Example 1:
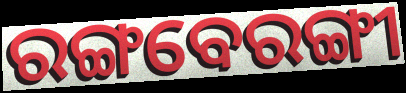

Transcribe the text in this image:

ରଙ୍ଗବେରଙ୍ଗୀ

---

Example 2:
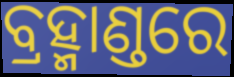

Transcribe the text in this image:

ବ୍ରହ୍ମାଣ୍ଡରେ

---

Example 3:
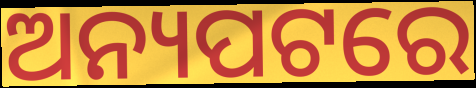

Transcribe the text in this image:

ଅନ୍ୟପଟରେ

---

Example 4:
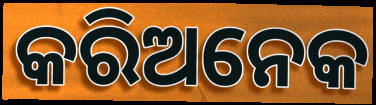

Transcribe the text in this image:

କରିଅନେକ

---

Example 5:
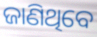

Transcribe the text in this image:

ଜାଣିଥିବେ